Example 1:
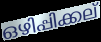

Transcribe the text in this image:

ഒഴിപ്പിക്കല്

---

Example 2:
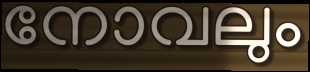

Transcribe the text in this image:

നോവലും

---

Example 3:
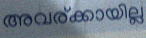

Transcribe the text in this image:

അവര്ക്കായില്ല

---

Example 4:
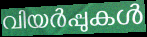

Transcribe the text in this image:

വിയർപ്പുകൾ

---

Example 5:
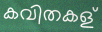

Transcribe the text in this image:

കവിതകള്